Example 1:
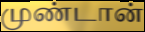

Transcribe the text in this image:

முண்டான்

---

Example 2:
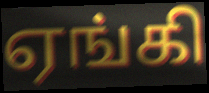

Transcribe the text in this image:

ஏங்கி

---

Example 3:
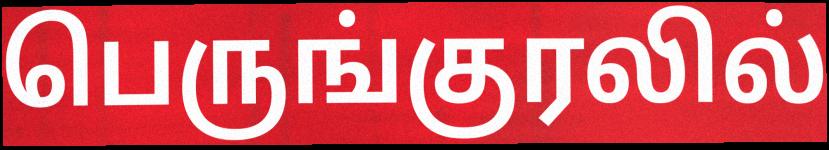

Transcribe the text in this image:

பெருங்குரலில்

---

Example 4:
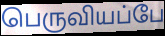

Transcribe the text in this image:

பெருவியப்பே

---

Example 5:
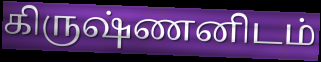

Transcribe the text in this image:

கிருஷ்ணனிடம்